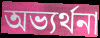
অভ্যৰ্থনা